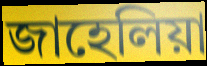
জাহেলিয়া